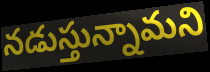
నడుస్తున్నామని